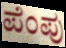
ಪೆಂಪು